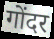
गोंदर